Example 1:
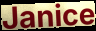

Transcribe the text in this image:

Janice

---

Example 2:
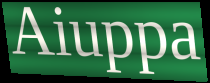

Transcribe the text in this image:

Aiuppa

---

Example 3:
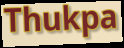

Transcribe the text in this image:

Thukpa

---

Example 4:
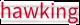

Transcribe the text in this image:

hawking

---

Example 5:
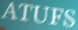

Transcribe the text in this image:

ATUFS